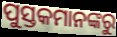
ପୁସ୍ତକମାନଙ୍କରୁ